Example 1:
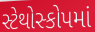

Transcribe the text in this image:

સ્ટેથોસ્કોપમાં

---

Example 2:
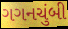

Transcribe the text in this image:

ગગનચુંબી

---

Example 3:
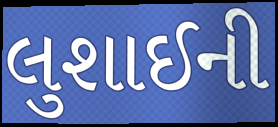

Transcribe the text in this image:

લુશાઈની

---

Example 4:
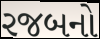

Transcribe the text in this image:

રજબનો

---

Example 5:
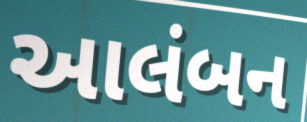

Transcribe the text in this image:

આલંબન